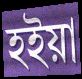
হইয়া